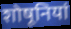
शोषूनियां